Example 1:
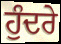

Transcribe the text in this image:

ਹੁੰਦਰੇ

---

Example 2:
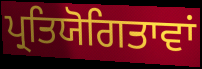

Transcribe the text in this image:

ਪ੍ਰਤਿਯੋਗਿਤਾਵਾਂ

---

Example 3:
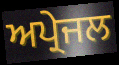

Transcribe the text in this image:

ਅਪ੍ਰੇਜਲ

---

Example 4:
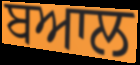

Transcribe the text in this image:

ਬਆਲ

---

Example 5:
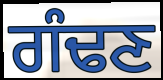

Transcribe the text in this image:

ਗੰਢਣ